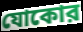
যোকোর